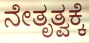
ನೇತೃತ್ವಕ್ಕೆ